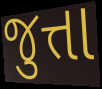
જુત્તા